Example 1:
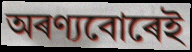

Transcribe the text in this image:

অৰণ্যবোৰেই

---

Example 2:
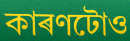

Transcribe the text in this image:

কাৰণটোও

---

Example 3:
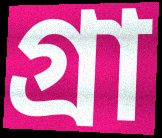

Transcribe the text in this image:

গ্ৰা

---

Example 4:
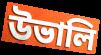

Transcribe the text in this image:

উভালি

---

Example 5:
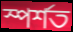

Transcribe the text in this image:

স্পৰ্শত